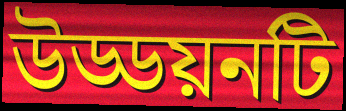
উড্ডয়নটি